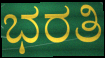
ಭರತಿ